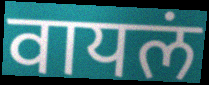
वायलं